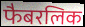
फैबरलिक